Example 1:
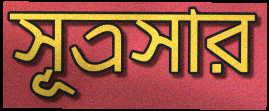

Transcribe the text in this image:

সূত্রসার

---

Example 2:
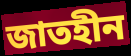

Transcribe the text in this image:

জাতহীন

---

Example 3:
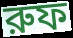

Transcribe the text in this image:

রুফ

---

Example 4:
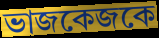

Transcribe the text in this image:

ভাজকেজকে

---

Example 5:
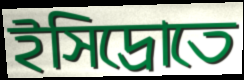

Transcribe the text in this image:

ইসিদ্রোতে